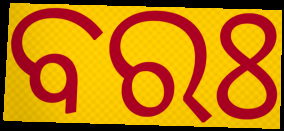
ବରଃ